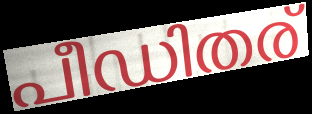
പീഡിതര്